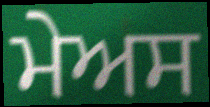
ਮੇਅਸ